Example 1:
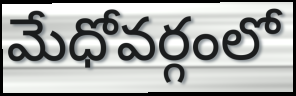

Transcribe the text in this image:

మేధోవర్గంలో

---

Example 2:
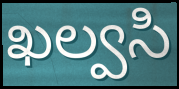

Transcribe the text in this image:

ఖల్వసి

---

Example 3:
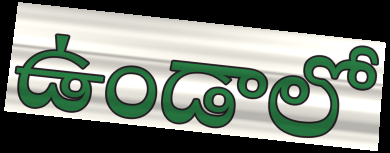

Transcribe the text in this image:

ఉండాలో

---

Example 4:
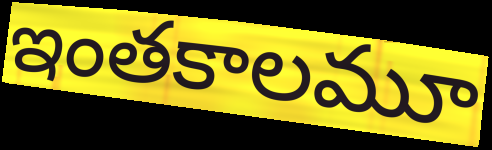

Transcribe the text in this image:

ఇంతకాలమూ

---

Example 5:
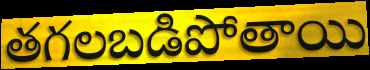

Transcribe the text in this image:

తగలబడిపోతాయి